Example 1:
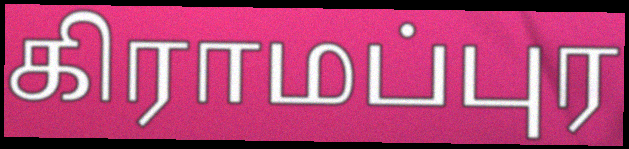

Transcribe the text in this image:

கிராமப்புர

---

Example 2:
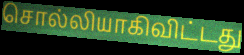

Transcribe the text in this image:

சொல்லியாகிவிட்டது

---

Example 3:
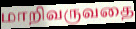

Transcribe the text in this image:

மாறிவருவதை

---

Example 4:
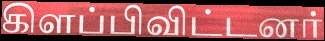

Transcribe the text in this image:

கிளப்பிவிட்டனர்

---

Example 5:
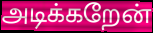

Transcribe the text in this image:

அடிக்கறேன்